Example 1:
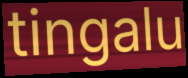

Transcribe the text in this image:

tingalu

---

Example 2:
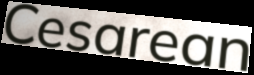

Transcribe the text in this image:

Cesarean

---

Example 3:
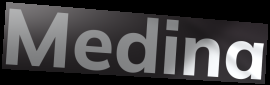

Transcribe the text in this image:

Medina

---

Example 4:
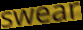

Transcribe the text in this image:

swear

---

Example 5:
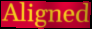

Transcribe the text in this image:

Aligned